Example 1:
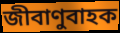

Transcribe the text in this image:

জীবাণুবাহক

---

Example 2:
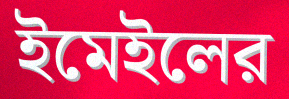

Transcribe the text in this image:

ইমেইলের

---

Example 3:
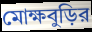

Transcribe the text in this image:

মোক্ষবুড়ির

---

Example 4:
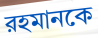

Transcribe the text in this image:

রহমানকে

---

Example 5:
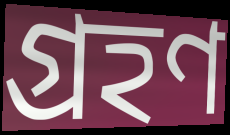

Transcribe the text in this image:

গ্রহণ